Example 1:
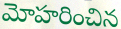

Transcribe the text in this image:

మోహరించిన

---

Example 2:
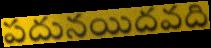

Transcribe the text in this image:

పదునయిదవది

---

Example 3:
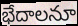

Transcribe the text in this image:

భేదాలనూ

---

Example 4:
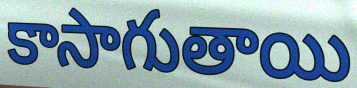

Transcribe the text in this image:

కాసాగుతాయి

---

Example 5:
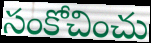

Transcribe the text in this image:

సంకోచించు